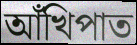
আঁখিপাত